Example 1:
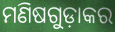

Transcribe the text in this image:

ମଣିଷଗୁଡ଼ାକର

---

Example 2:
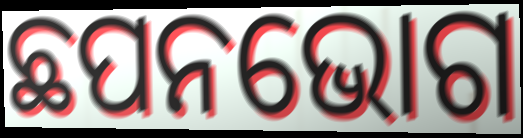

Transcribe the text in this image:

ଛପନଭୋଗ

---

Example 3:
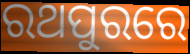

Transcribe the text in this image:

ରଥପୁରରେ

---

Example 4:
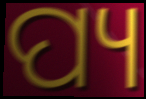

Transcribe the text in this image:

ପ୍ୟ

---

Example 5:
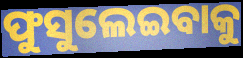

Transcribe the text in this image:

ଫୁସୁଲେଇବାକୁ